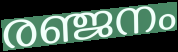
രഞ്ജനം